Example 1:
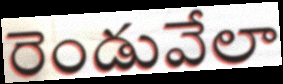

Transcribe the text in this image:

రెండువేలా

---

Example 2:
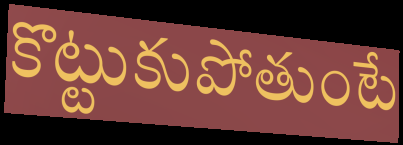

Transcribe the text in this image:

కొట్టుకుపోతుంటే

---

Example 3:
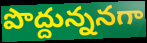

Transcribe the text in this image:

పొద్దున్ననగా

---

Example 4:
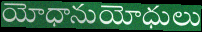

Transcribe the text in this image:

యోధానుయోధులు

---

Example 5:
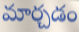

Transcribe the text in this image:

మార్చడం